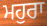
ਮਹੁਰਾ